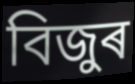
বিজুৰ